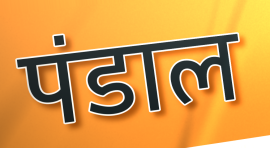
पंडाल